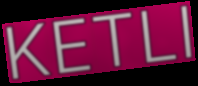
KETLI